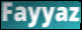
Fayyaz